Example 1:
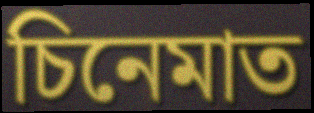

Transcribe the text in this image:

চিনেমাত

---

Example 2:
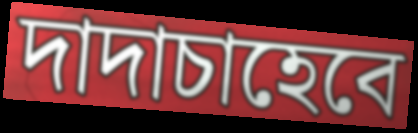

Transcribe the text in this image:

দাদাচাহেবে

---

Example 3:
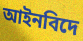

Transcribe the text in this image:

আইনবিদে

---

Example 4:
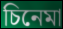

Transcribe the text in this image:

চিনেমা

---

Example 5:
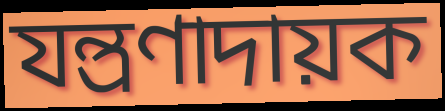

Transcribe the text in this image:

যন্ত্ৰণাদায়ক